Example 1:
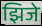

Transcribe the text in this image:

झिजे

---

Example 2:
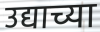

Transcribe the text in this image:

उद्याच्या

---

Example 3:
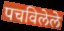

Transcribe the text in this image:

पचविलेले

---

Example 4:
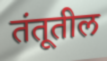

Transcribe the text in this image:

तंतूतील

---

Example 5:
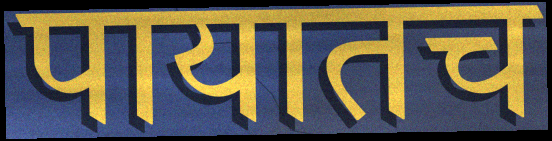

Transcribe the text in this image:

पायातच